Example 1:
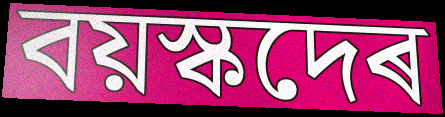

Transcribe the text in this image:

বয়স্কদেৰ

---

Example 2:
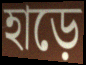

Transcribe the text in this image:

হাড়ে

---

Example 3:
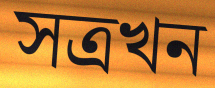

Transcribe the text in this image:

সত্ৰখন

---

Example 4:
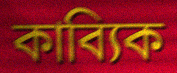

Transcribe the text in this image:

কাব্যিক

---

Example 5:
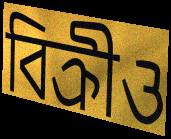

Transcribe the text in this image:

বিক্ৰীও